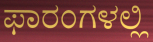
ಫಾರಂಗಳಲ್ಲಿ